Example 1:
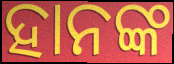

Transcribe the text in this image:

ହାନଙ୍କ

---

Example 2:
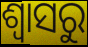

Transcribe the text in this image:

ଶ୍ୱାସରୁ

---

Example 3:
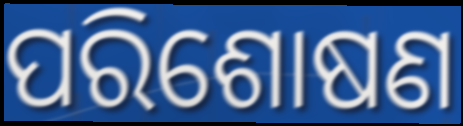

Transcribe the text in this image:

ପରିଶୋଷଣ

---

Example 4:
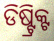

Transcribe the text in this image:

ଡିଷ୍ଟ୍ରିକ୍ଟ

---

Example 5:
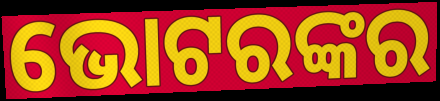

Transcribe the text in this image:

ଭୋଟରଙ୍କର